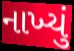
નાખ્યું